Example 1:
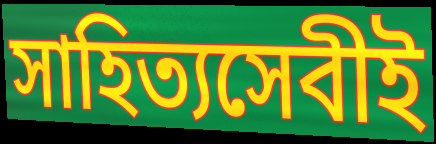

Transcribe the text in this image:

সাহিত্যসেবীই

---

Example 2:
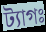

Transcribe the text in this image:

ট্যাগঃ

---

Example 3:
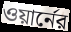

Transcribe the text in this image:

ওয়ার্নের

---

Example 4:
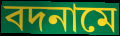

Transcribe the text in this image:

বদনামে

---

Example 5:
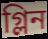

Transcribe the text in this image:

গ্লিন